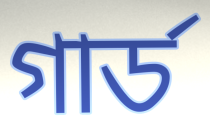
গাৰ্ড